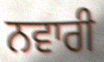
ਨਵਾਰੀ